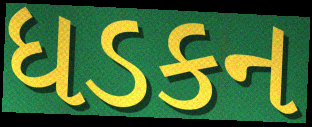
ધડકન